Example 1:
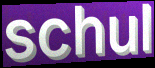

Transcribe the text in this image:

schul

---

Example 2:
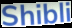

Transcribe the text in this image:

Shibli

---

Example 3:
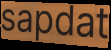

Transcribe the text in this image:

sapdat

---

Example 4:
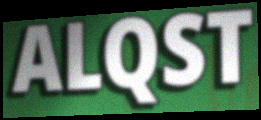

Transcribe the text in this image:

ALQST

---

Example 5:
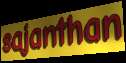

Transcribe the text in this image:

sajanthan